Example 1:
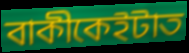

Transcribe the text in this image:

বাকীকেইটাত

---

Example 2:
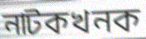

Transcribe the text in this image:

নাটকখনক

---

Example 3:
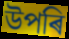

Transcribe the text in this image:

উপৰি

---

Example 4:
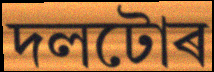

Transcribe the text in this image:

দলটোৰ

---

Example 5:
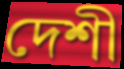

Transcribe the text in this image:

দেশী